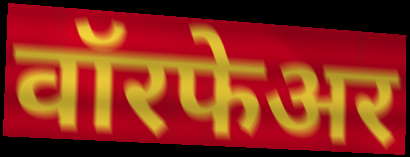
वॉरफेअर